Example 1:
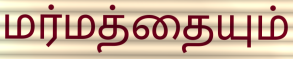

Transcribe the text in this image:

மர்மத்தையும்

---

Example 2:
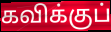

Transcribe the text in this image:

கவிக்குப்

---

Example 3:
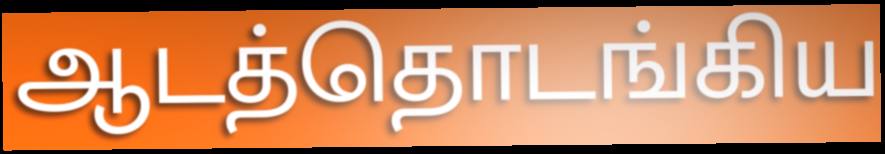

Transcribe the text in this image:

ஆடத்தொடங்கிய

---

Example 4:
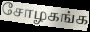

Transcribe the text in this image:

சோழகங்க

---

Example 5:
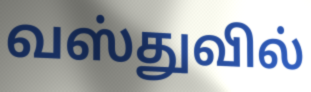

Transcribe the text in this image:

வஸ்துவில்